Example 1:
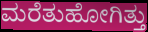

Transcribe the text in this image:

ಮರೆತುಹೋಗಿತ್ತು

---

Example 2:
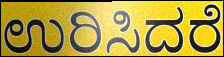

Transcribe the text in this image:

ಉರಿಸಿದರೆ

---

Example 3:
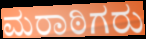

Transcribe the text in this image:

ಮರಾಠಿಗರು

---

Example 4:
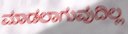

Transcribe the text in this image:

ಮಾಡಲಾಗುವುದಿಲ್ಲ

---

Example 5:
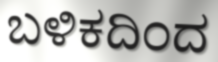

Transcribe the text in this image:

ಬಳಿಕದಿಂದ